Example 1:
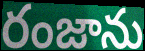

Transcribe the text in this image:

రంజాను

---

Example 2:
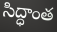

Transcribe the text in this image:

సిద్ధాంత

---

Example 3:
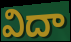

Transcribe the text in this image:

విదా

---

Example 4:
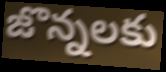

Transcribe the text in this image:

జొన్నలకు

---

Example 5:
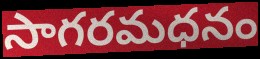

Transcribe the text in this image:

సాగరమధనం